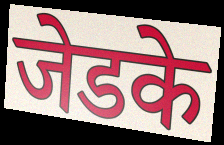
जेडके